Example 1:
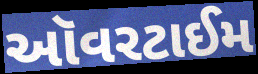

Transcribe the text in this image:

ઑવરટાઈમ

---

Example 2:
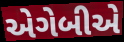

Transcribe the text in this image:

એગેબીએ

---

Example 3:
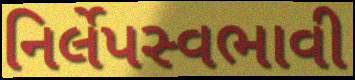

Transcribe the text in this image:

નિર્લેપસ્વભાવી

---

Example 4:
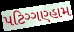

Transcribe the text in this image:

પટિગ્ગણ્હામ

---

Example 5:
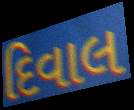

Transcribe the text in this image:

દિવાલ